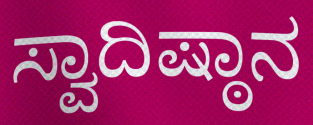
ಸ್ವಾದಿಷ್ಠಾನ